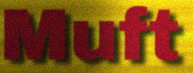
Muft